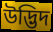
উদ্ভিদ